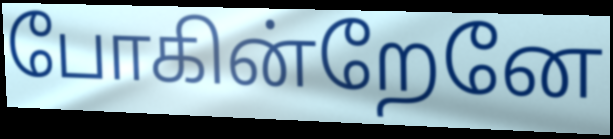
போகின்றேனே